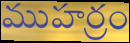
ముహర్రం